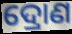
ଦ୍ରୋଣ